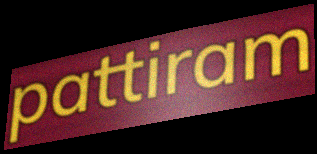
pattiram